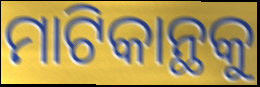
ମାଟିକାନ୍ଥକୁ